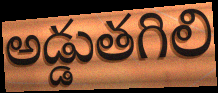
అడ్డుతగిలి